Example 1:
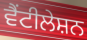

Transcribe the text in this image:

ਵੈਂਟੀਲੇਸ਼ਨ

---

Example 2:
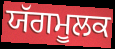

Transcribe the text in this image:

ਯੱਗਮੂਲਕ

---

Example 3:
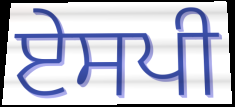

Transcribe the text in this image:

ਏਸਪੀ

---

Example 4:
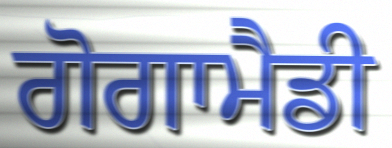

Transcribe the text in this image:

ਗੋਗਾਮੈਡੀ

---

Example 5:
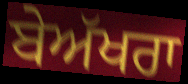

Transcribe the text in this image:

ਬੇਅੱਖਰਾ